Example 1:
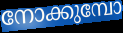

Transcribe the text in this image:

നോക്കുമ്പോ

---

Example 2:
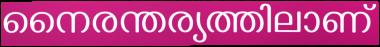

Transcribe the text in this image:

നൈരന്തര്യത്തിലാണ്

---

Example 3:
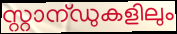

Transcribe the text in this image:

സ്റ്റാന്ഡുകളിലും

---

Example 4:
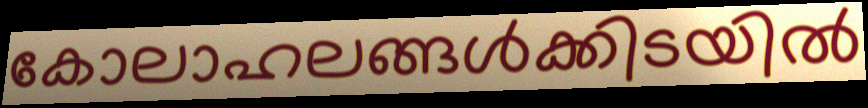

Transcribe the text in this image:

കോലാഹലങ്ങൾക്കിടയിൽ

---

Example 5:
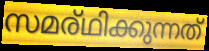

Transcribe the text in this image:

സമര്ഥിക്കുന്നത്